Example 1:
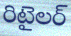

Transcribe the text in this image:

రిటైలర్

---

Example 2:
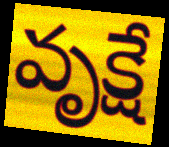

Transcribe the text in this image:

వృక్షే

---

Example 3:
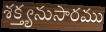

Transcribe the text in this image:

శక్త్యనుసారము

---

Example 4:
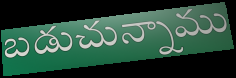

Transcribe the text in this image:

బడుచున్నాము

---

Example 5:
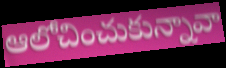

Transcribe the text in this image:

ఆలోచించుకున్నావా